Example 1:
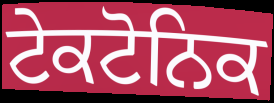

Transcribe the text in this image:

ਟੇਕਟੋਨਿਕ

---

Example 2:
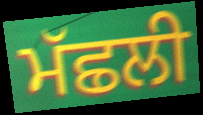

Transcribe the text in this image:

ਮੱਛਲੀ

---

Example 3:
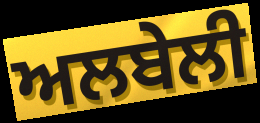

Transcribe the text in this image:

ਅਲਬੇਲੀ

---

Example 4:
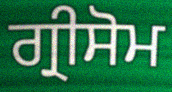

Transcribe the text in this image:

ਗ੍ਰੀਸੋਮ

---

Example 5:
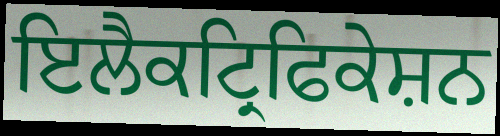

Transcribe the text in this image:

ਇਲੈਕਟ੍ਰਿਫਿਕੇਸ਼ਨ